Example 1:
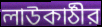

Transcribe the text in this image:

লাউকাঠীর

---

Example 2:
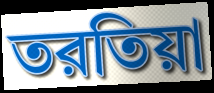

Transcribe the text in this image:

তরতিয়া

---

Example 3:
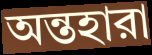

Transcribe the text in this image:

অন্তহারা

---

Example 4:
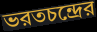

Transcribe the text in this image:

ভরতচন্দ্রের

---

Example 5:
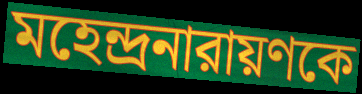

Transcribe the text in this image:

মহেন্দ্রনারায়ণকে